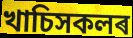
খাচিসকলৰ